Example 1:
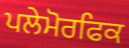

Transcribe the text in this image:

ਪਲੇਮੋਰਫਿਕ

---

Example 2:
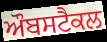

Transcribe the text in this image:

ਔਬਸਟੈਕਲ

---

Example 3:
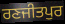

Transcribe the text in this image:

ਰਣਜੀਤਪੁਰ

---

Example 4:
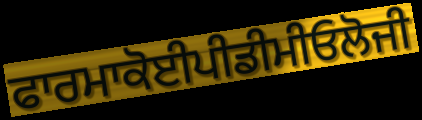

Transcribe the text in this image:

ਫਾਰਮਾਕੋਈਪੀਡੀਮੀਓਲੋਜੀ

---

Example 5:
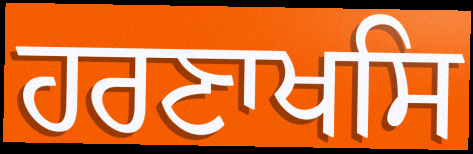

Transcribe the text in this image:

ਹਰਣਾਖਸਿ